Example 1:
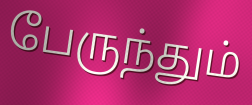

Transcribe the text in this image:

பேருந்தும்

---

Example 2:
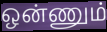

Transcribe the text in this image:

ஒன்ணும்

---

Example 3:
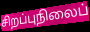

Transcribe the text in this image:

சிறப்புநிலைப்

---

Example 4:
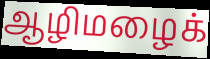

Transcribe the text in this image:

ஆழிமழைக்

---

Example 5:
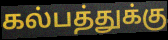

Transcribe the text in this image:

கல்பத்துக்கு